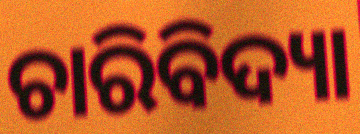
ଚାରିବିଦ୍ୟା